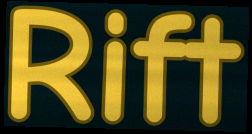
Rift